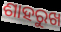
ଶାହରୁଖ